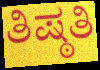
ತಿಷ್ಠತಿ